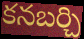
కనబర్చి